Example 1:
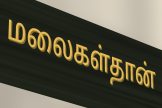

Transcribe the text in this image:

மலைகள்தான்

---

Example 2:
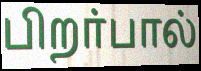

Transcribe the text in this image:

பிறர்பால்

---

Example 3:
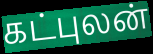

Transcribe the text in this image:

கட்புலன்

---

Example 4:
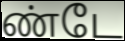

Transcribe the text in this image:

ண்டே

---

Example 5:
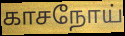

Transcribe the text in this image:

காசநோய்